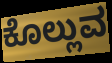
ಕೊಲ್ಲುವ